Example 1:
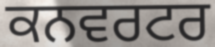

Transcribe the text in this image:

ਕਨਵਰਟਰ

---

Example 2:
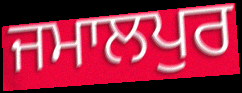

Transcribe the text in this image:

ਜਮਾਲਪੁਰ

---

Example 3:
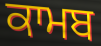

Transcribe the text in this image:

ਕਾਮਬ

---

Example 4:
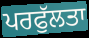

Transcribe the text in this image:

ਪਰਫੁੱਲਤਾ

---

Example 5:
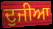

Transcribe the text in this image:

ਦੁਜੀਆ